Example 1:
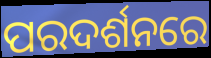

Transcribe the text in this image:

ପରଦର୍ଶନରେ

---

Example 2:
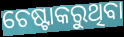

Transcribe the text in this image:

ଚେଷ୍ଟାକରୁଥିବା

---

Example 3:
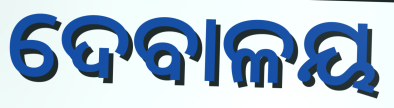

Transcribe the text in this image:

ଦେବାଳୟ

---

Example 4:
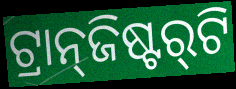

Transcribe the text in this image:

ଟ୍ରାନ୍‌ଜିଷ୍ଟର୍‌ଟି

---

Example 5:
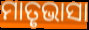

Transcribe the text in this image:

ମାତୃଭାସା